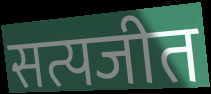
सत्यजीत